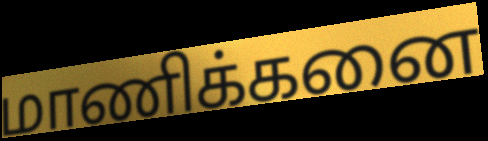
மாணிக்கனை